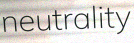
neutrality